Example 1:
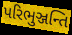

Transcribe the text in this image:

પરિભુઞ્જન્તિ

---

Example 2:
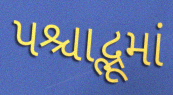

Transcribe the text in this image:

પશ્ચાદ્ભૂમાં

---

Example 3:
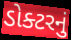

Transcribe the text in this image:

ડોક્ટરનું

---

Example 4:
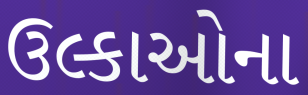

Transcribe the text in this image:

ઉલ્કાઓના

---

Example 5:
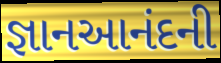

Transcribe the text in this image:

જ્ઞાનઆનંદની